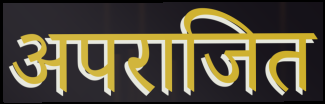
अपराजित